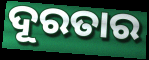
ଦୂରତାର